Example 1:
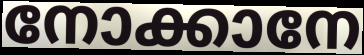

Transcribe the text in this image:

നോക്കാനേ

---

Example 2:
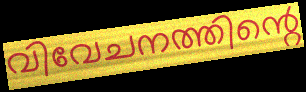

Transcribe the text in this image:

വിവേചനത്തിന്റെ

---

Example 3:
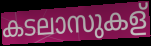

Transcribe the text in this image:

കടലാസുകള്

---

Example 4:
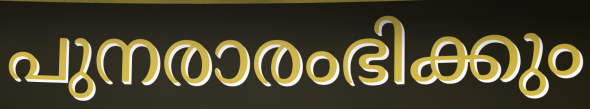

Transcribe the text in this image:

പുനരാരംഭിക്കും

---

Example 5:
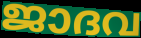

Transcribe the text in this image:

ജാദവ